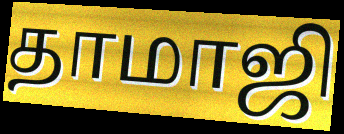
தாமாஜி